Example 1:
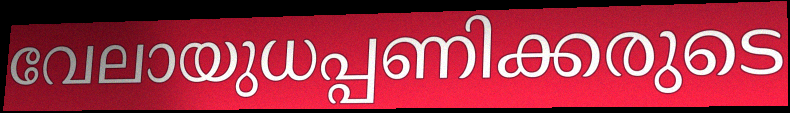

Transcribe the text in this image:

വേലായുധപ്പണിക്കരുടെ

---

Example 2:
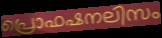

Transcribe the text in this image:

പ്രൊഫഷനലിസം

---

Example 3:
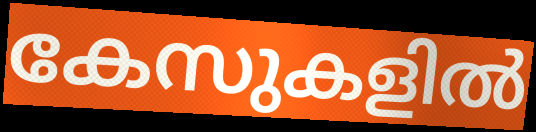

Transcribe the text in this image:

കേസുകളിൽ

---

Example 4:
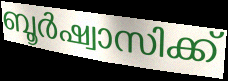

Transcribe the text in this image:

ബൂർഷ്വാസിക്ക്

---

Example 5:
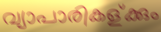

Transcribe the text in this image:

വ്യാപാരികള്ക്കും